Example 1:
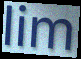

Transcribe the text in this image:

lim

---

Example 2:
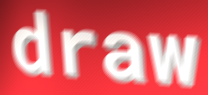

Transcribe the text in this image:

draw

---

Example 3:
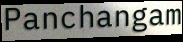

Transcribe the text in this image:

Panchangam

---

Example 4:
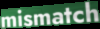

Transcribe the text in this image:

mismatch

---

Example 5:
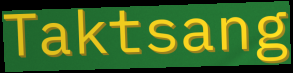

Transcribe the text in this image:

Taktsang